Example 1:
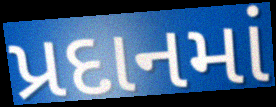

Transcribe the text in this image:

પ્રદાનમાં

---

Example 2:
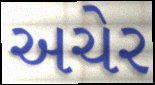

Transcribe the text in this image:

અચેર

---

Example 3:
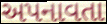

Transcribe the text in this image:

અપનાવતા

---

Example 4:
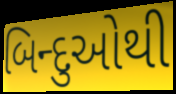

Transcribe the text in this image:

બિન્દુઓથી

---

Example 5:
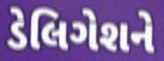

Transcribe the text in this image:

ડેલિગેશને